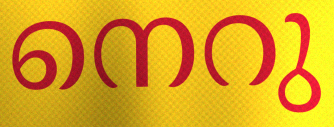
നെറു